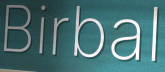
Birbal